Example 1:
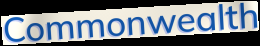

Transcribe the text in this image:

Commonwealth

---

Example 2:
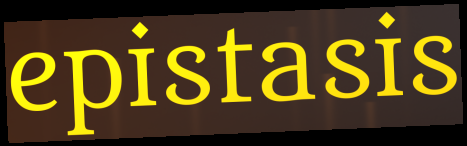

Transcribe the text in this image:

epistasis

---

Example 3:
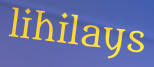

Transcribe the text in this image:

lihilays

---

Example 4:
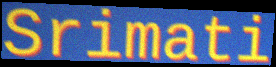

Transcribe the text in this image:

Srimati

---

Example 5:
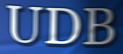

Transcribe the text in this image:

UDB